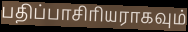
பதிப்பாசிரியராகவும்